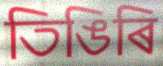
তিঙিৰি